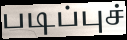
படிப்புச்